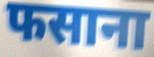
फसाना